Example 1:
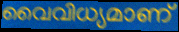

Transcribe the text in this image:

വൈവിധ്യമാണ്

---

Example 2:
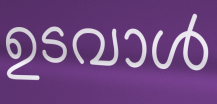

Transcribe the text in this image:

ഉടവാൾ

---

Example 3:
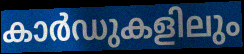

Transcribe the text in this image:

കാർഡുകളിലും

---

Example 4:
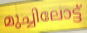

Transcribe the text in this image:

മുച്ചിലോട്ട്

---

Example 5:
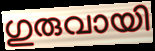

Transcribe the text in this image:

ഗുരുവായി